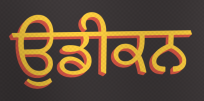
ਉਡੀਕਨ